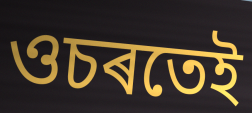
ওচৰতেই